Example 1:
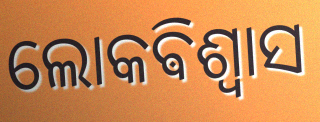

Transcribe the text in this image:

ଲୋକଵିଶ୍ଵାସ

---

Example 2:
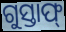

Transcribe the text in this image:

ଗୁସ୍ତାଫ୍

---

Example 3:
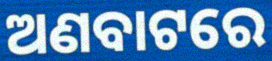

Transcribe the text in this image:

ଅଣବାଟରେ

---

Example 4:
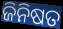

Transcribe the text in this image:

ଜିନିଷତ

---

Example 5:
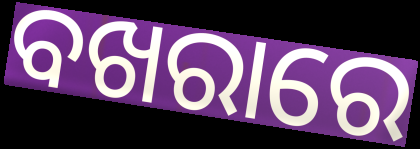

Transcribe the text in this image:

ବଖରାରେ